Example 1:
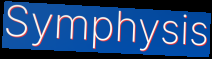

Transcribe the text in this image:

Symphysis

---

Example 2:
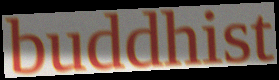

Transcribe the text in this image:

buddhist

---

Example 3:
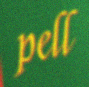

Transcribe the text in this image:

pell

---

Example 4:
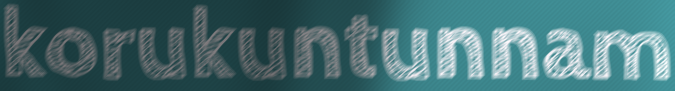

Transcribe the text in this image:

korukuntunnam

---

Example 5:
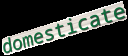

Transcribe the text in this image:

domesticate